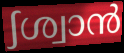
ഽശ്വാൻ